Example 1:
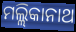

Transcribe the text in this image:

ମଲ୍ଲିକାନାଥ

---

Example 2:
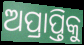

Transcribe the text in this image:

ଅପ୍ରାପ୍ତିକୁ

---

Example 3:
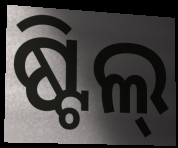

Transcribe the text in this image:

ଷ୍ଟିଲ୍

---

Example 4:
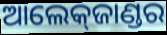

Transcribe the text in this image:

ଆଲେକ୍‌ଜାଣ୍ଡର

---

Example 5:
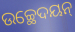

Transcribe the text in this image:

ଉଚ୍ଛେଦୟନ୍